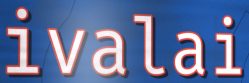
ivalai